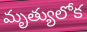
మృత్యులోక